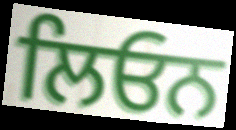
ਲਿਓਨ